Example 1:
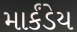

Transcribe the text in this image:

માર્કંડેય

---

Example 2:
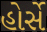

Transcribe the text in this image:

હોર્સે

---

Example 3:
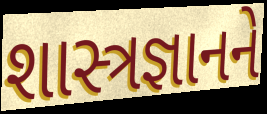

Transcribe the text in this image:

શાસ્ત્રજ્ઞાનને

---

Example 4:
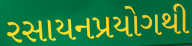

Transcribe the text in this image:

રસાયનપ્રયોગથી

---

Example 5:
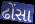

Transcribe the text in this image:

ઢોંસા